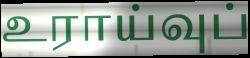
உராய்வுப்